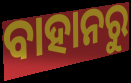
ବାହାନରୁ